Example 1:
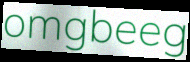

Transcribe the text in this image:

omgbeeg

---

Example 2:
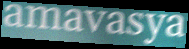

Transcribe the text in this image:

amavasya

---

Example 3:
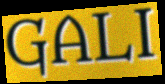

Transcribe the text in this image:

GALI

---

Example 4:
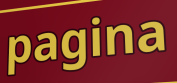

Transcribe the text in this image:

pagina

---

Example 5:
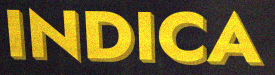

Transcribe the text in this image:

INDICA